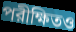
পরীক্ষিতও